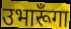
उभारूँगा